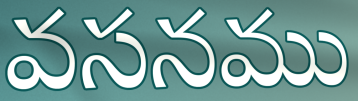
వసనము